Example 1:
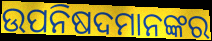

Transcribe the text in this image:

ଉପନିଷଦମାନଙ୍କର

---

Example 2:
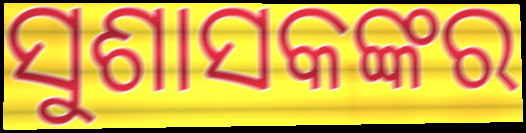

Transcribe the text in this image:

ସୁଶାସକଙ୍କର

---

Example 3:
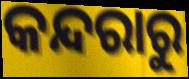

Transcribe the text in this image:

କନ୍ଦରାରୁ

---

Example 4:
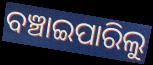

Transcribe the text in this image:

ବଞ୍ଚାଇପାରିଲୁ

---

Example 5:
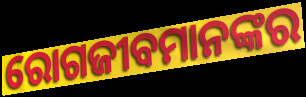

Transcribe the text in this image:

ରୋଗଜୀବମାନଙ୍କର